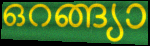
ഒറങ്ങ്യാ